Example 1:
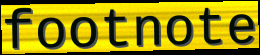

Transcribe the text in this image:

footnote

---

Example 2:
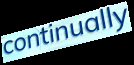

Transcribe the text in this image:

continually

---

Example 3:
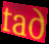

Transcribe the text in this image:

tad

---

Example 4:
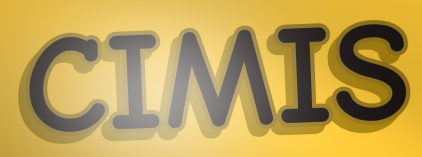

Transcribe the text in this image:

CIMIS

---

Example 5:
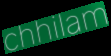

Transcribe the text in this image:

chhilam